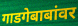
गाडगेबाबांवर